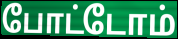
போட்டோம்